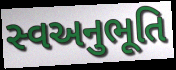
સ્વઅનુભૂતિ